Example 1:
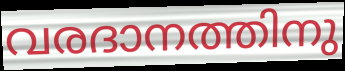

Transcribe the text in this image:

വരദാനത്തിനു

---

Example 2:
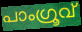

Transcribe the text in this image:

പാംഗ്രൂവ്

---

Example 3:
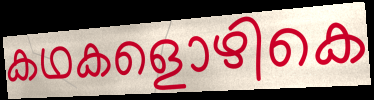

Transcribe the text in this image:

കഥകളൊഴികെ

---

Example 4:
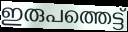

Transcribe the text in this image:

ഇരുപത്തെട്ട്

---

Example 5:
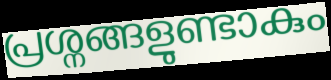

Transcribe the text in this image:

പ്രശ്നങ്ങളുണ്ടാകും